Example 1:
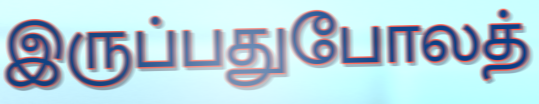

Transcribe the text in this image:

இருப்பதுபோலத்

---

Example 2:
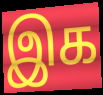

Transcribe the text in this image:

இக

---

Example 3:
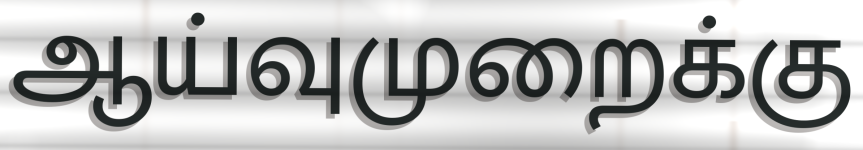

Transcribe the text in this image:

ஆய்வுமுறைக்கு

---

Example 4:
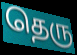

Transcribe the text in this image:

தெரு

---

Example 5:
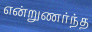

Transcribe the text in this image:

என்றுணர்ந்த